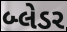
બ્લેડર